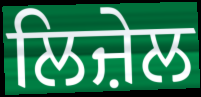
ਲਿਜ਼ੇਲ